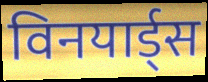
विनयार्ड्स